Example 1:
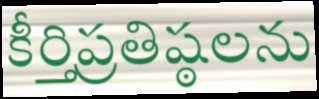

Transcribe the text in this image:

కీర్తిప్రతిష్ఠలను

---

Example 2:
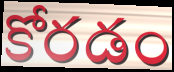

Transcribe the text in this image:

కోరడం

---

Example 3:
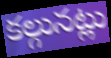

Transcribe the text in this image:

కల్గునట్లు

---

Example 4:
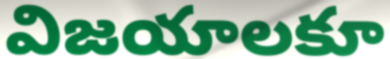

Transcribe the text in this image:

విజయాలకూ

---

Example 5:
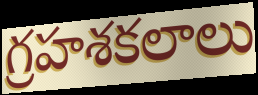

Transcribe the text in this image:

గ్రహశకలాలు